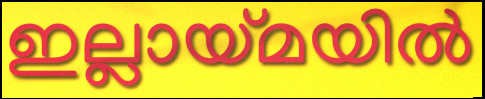
ഇല്ലായ്മയിൽ